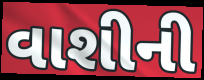
વાશીની